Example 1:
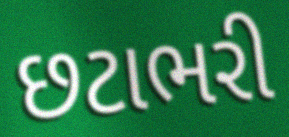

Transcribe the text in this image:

છટાભરી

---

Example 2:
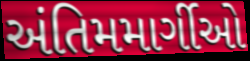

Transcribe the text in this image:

અંતિમમાર્ગીઓ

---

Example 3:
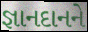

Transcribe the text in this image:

જ્ઞાનદાનને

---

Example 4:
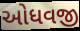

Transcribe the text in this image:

ઓધવજી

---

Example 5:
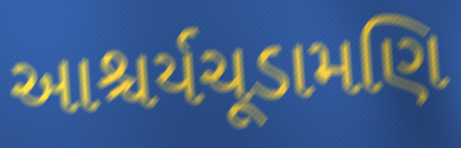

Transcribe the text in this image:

આશ્ચર્યચૂડામણિ